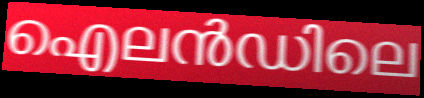
ഐലൻഡിലെ